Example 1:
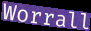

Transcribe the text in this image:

Worrall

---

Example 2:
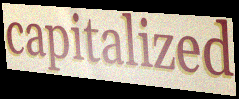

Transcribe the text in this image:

capitalized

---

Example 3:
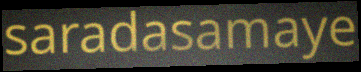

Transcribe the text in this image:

saradasamaye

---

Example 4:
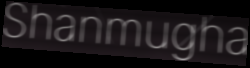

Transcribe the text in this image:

Shanmugha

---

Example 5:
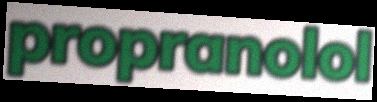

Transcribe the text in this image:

propranolol